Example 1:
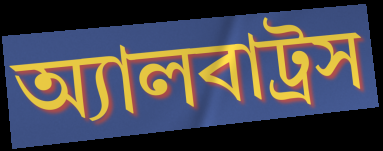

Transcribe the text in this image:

অ্যালবাট্রস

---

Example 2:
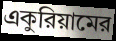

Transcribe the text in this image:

একুরিয়ামের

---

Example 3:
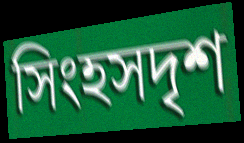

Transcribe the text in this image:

সিংহসদৃশ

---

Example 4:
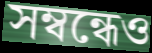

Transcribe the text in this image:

সম্বন্ধেও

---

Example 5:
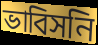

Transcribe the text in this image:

ভাবিসনি